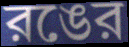
রঙের